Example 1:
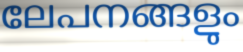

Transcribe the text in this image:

ലേപനങ്ങളും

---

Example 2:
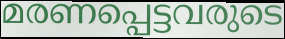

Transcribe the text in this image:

മരണപ്പെട്ടവരുടെ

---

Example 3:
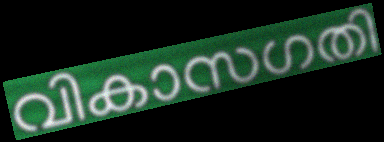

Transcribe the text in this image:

വികാസഗതി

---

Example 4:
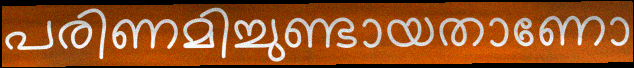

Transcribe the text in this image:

പരിണമിച്ചുണ്ടായതാണോ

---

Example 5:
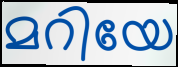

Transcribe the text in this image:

മറിയേ